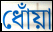
ধোঁয়া